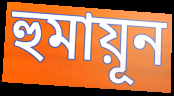
হুমায়ূন